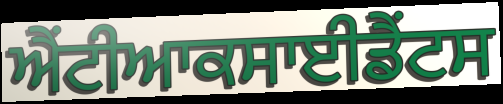
ਐਂਟੀਆਕਸਾਈਡੈਂਟਸ